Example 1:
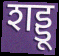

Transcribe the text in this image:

शड्डू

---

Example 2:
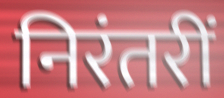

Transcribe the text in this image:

निरंतरीं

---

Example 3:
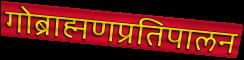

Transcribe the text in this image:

गोब्राह्मणप्रतिपालन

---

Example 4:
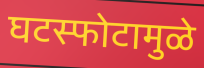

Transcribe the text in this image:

घटस्फोटामुळे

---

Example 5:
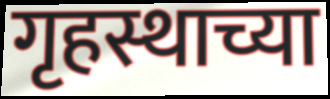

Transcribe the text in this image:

गृहस्थाच्या